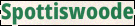
Spottiswoode